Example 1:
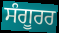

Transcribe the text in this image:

ਸੰਗੂਰਰ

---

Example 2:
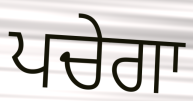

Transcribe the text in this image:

ਪਚੇਗਾ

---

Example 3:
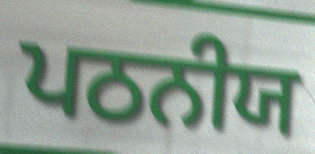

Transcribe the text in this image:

ਪਠਨੀਯ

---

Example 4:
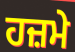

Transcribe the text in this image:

ਹਜ਼ਮੇ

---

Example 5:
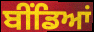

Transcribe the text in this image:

ਬੀਂਡਿਆਂ